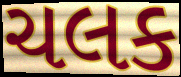
ચલક